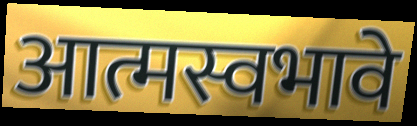
आत्मस्वभावे